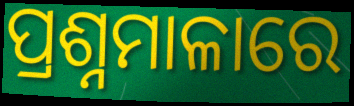
ପ୍ରଶ୍ନମାଳାରେ